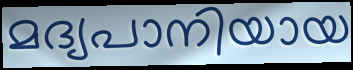
മദ്യപാനിയായ